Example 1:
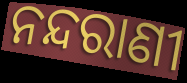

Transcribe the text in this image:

ନନ୍ଦରାଣୀ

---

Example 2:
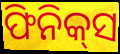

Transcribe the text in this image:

ଫିନିକ୍‌ସ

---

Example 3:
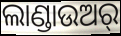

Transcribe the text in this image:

ଲାଣ୍ଡାଉଅର୍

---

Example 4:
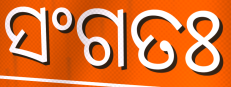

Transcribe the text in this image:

ସଂଗତଃ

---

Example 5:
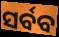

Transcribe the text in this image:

ସର୍ବବ